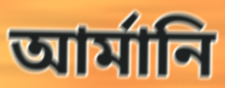
আর্মানি